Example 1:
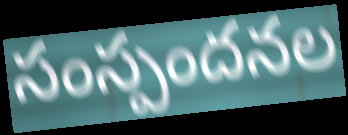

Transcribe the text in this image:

సంస్పందనల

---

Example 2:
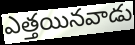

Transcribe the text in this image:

ఎత్తయినవాడు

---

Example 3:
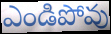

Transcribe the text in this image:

ఎండిపోవు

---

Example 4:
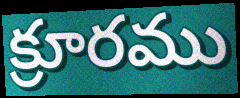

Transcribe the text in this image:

క్రూరము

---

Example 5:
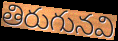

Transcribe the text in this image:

తిరుగునవి